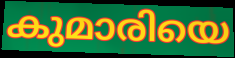
കുമാരിയെ